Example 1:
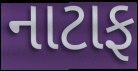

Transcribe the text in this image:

નાટાફ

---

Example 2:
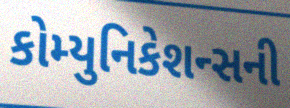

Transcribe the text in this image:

કોમ્યુનિકેશન્સની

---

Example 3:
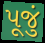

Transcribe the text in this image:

પૂજું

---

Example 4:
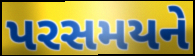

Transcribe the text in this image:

પરસમયને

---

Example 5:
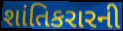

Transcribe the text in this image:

શાંતિકરારની